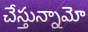
చేస్తున్నామో